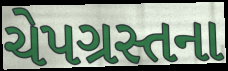
ચેપગ્રસ્તના